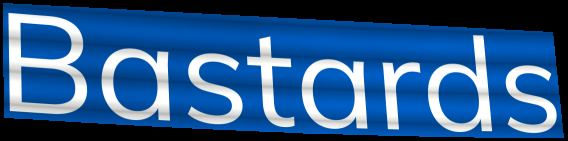
Bastards